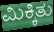
ಮಿಕ್ಕಿತು